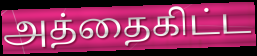
அத்தைகிட்ட